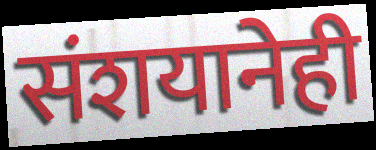
संशयानेही